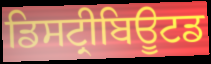
ਡਿਸਟ੍ਰੀਬਿਊਟਡ